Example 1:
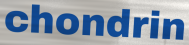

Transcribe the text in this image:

chondrin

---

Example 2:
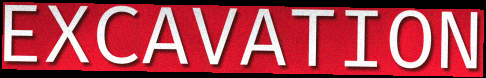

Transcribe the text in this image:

EXCAVATION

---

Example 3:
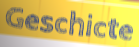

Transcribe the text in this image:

Geschicte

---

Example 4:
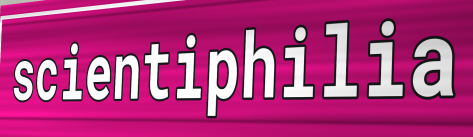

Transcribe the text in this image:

scientiphilia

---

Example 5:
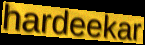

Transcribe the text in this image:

hardeekar